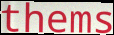
thems